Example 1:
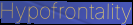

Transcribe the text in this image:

Hypofrontality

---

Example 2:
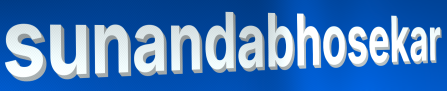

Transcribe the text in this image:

sunandabhosekar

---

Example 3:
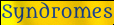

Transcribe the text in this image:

Syndromes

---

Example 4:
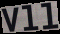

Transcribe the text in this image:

Vll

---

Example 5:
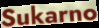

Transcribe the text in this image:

Sukarno